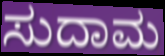
ಸುದಾಮ